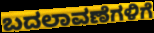
ಬದಲಾವಣೆಗಳಿಗೆ